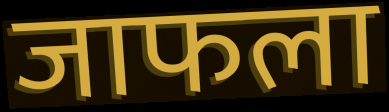
जाफला